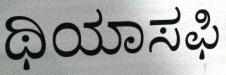
ಥಿಯಾಸಫಿ